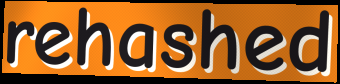
rehashed